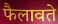
फैलावते